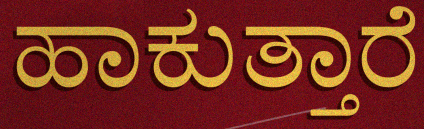
ಹಾಕುತ್ತಾರೆ